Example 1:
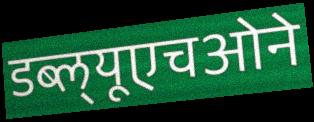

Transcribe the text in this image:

डब्ल्यूएचओने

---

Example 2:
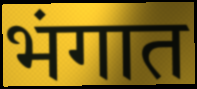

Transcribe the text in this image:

भंगात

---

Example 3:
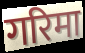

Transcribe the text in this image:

गरिमा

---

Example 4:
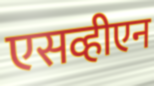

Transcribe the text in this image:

एसव्हीएन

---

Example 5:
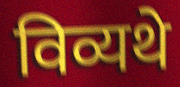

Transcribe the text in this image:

विव्यथे